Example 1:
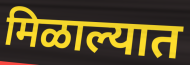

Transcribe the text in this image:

मिळाल्यात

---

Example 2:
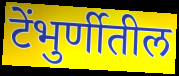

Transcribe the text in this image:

टेंभुर्णीतील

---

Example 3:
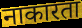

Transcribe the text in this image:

नाकारता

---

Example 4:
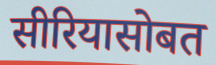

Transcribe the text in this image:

सीरियासोबत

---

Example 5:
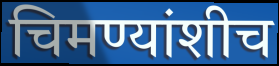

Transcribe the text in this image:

चिमण्यांशीच